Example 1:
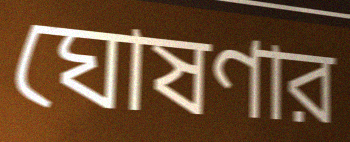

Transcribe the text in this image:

ঘোষণার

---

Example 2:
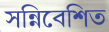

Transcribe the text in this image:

সন্নিবেশিত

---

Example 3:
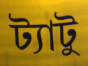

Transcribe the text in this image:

ট্যাটু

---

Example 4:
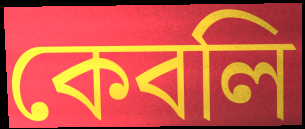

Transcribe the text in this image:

কেবলি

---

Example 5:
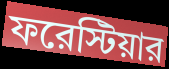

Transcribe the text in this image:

ফরেস্টিয়ার